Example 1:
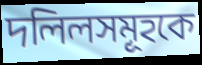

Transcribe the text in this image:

দলিলসমূহকে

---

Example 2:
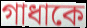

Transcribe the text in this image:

গাধাকে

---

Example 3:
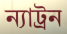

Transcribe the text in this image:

ন্যাট্রন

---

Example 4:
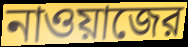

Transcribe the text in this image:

নাওয়াজের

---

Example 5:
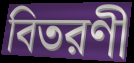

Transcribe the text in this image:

বিতরণী